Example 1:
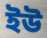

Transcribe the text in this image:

ইউ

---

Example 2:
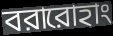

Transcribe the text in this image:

বরারোহাং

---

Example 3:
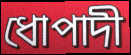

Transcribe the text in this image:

ধোপাদী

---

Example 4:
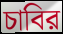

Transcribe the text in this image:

চাবির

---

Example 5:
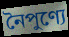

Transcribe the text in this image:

নৈপুণ্যে